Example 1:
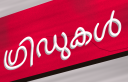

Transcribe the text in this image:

ഗ്രിഡുകൾ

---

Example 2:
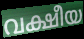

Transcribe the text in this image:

വക്ഷീയ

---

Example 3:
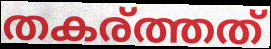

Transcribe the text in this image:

തകര്ത്തത്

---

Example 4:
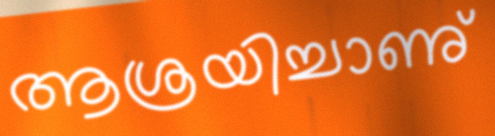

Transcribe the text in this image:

ആശ്രയിച്ചാണു്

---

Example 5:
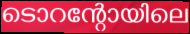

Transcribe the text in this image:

ടൊറന്റോയിലെ